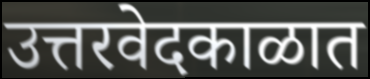
उत्तरवेदकाळात